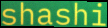
shashi